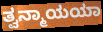
ತ್ವನ್ಮಾಯಯಾ